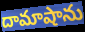
దామాషాను